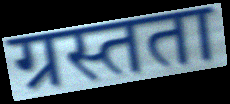
ग्रस्तता